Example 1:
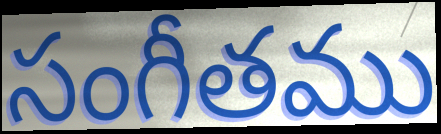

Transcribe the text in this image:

సంగీతము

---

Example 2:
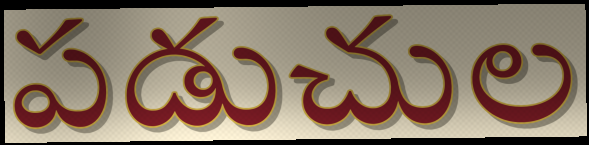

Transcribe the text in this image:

పడుచుల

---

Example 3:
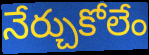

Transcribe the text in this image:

నేర్చుకోలేం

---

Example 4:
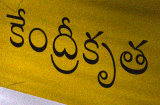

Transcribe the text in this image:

కేంద్రీకృత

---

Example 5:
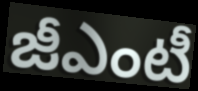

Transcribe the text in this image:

జీఎంటీ